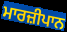
ਮਾਰਜ਼ੀਪਾਨ